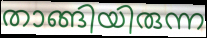
താങ്ങിയിരുന്ന